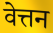
वेत्तन